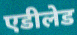
एडीलेड